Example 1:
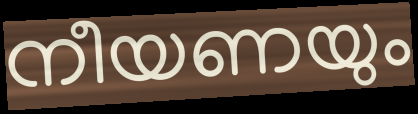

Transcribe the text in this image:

നീയണയും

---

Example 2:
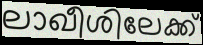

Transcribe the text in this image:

ലാഖീശിലേക്ക്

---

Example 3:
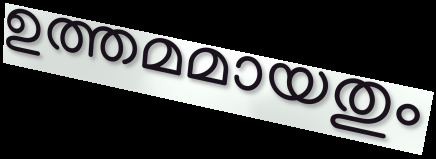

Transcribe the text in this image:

ഉത്തമമായതും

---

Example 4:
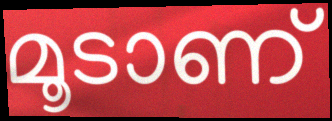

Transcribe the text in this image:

മൂടാണ്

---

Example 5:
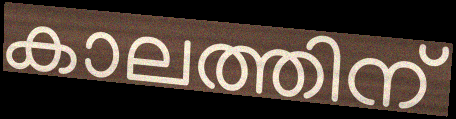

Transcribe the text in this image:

കാലത്തിന്